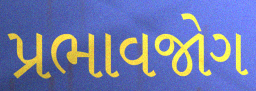
પ્રભાવજોગ